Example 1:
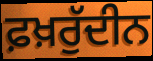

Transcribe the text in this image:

ਫ਼ਖ਼ਰੁੱਦੀਨ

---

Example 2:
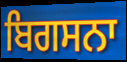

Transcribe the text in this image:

ਬਿਗਸਨਾ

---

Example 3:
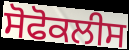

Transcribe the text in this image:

ਸੋਫੋਕਲੀਸ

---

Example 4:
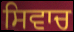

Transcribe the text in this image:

ਸਿਵਾਚ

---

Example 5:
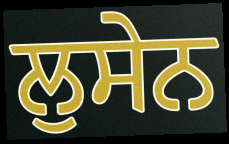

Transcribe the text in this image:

ਲੁਸੇਨ